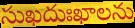
సుఖదుఃఖాలను